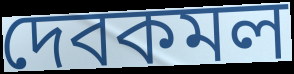
দেবকমল